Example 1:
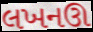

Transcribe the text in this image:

લખનઊ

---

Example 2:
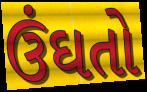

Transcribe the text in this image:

ઉંઘતો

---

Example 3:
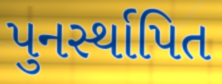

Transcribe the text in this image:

પુનર્સ્થાપિત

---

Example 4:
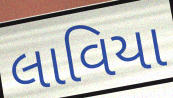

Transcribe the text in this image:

લાવિયા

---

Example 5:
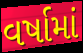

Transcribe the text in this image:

વર્ષામાં